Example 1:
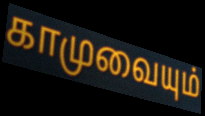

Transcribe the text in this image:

காமுவையும்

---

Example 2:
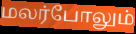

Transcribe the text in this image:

மலர்போலும்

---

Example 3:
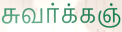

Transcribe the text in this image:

சுவர்க்கஞ்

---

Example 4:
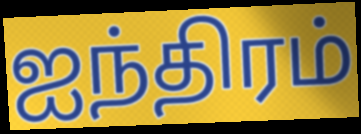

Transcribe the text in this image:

ஐந்திரம்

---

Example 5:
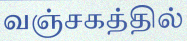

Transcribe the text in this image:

வஞ்சகத்தில்